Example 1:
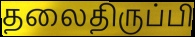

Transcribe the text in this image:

தலைதிருப்பி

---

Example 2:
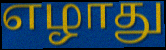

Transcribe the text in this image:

எழாது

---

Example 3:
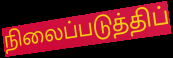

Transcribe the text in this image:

நிலைப்படுத்திப்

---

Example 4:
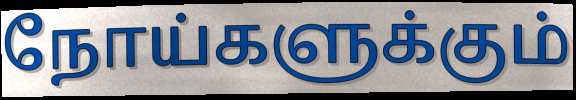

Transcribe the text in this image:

நோய்களுக்கும்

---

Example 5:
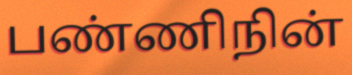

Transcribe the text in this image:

பண்ணிநின்